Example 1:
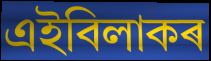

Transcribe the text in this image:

এইবিলাকৰ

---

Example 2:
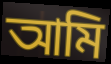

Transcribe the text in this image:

আমি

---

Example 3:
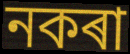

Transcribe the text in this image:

নকৰা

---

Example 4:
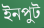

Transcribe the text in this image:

ইনপুট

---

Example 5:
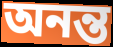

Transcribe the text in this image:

অনন্ত